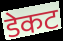
डेकट